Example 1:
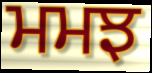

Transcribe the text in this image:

ਮਮਝ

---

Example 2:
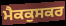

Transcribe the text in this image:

ਮੈਕਕੁਸਕਰ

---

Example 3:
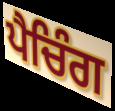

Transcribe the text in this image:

ਪੈਚਿੰਗ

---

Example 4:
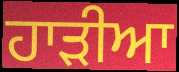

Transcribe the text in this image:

ਹਾੜੀਆ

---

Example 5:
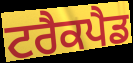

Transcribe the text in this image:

ਟਰੈਕਪੈਡ